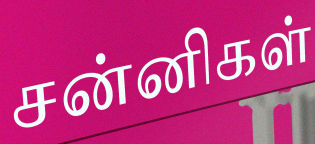
சன்னிகள்